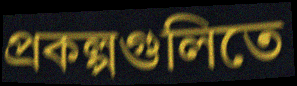
প্রকল্পগুলিতে